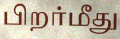
பிறர்மீது